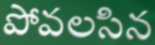
పోవలసిన